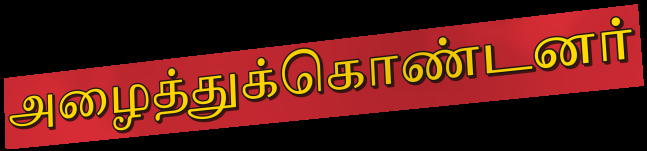
அழைத்துக்கொண்டனர்